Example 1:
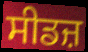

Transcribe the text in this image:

ਸੀਡਜ਼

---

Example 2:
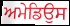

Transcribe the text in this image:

ਅਮੇਡਿਉਸ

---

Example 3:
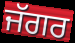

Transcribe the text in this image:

ਜੱਗਰ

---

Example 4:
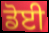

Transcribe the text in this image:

ਡੋਈ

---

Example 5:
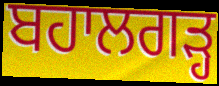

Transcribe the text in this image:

ਬਹਾਲਗੜ੍ਹ